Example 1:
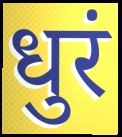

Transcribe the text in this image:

धुरं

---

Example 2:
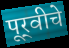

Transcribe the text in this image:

पूर्वीचे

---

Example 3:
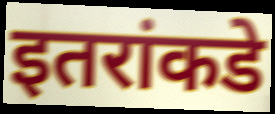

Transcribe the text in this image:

इतरांकडे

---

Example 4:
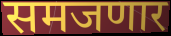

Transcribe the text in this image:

समजणार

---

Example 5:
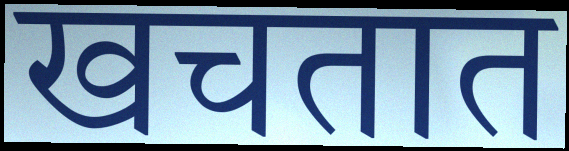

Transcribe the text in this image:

खचतात